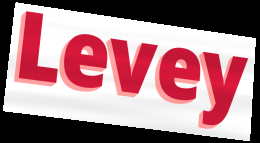
Levey